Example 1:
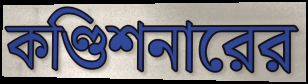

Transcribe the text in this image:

কণ্ডিশনারের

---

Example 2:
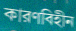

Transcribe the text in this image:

কারণবিহীন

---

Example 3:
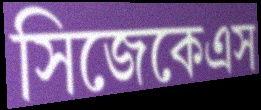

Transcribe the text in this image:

সিজেকেএস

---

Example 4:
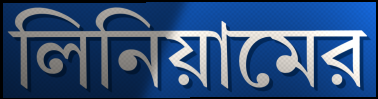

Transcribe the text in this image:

লিনিয়ামের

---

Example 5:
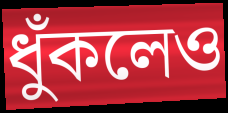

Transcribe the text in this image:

ধুঁকলেও